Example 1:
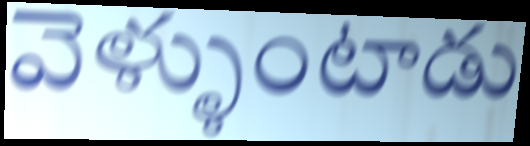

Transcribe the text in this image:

వెళ్ళుంటాడు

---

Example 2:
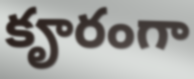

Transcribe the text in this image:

కౄరంగా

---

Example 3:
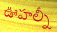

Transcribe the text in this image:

ఊహల్నీ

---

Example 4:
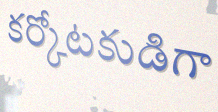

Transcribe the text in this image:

కర్కోటకుడిగా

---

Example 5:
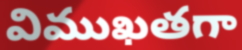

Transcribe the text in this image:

విముఖతగా